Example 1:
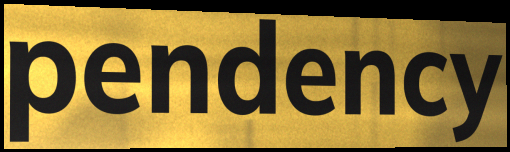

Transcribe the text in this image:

pendency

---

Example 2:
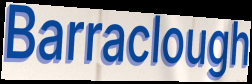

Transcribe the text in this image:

Barraclough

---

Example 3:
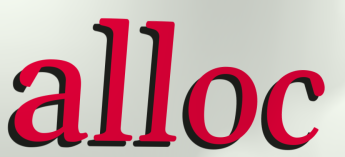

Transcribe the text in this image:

alloc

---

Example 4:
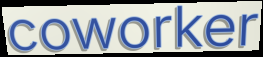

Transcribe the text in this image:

coworker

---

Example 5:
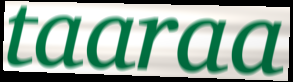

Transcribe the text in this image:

taaraa